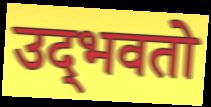
उद्‌भवतो